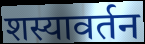
शस्यावर्तन